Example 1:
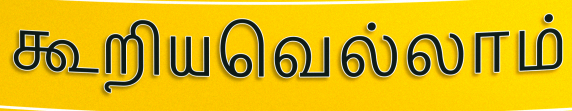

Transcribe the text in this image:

கூறியவெல்லாம்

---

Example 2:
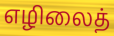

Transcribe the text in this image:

எழிலைத்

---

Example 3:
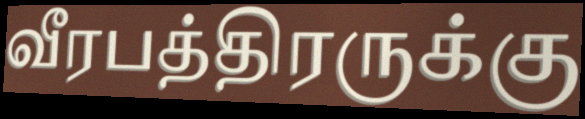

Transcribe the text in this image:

வீரபத்திரருக்கு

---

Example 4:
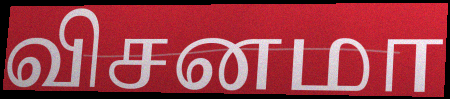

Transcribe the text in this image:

விசனமா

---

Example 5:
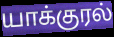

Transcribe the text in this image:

யாக்குரல்